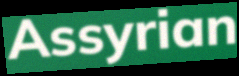
Assyrian